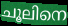
ചൂലിനെ